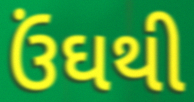
ઉંઘથી